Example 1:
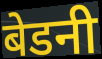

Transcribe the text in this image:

बेडनी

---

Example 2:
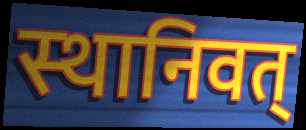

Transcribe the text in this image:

स्थानिवत्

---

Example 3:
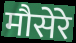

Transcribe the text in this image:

मौसेरे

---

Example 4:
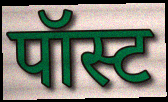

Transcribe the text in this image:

पॉस्ट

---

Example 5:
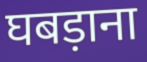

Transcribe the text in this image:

घबड़ाना